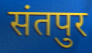
संतपुर